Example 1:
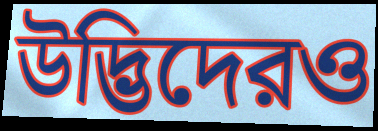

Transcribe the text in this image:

উদ্ভিদেরও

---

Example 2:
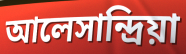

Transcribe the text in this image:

আলেসান্দ্রিয়া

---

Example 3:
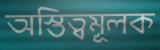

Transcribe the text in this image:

অস্তিত্বমূলক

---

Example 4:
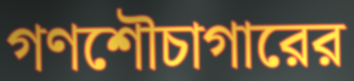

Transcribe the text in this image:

গণশৌচাগারের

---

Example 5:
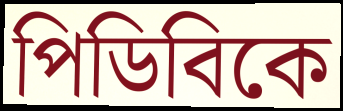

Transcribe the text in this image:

পিডিবিকে